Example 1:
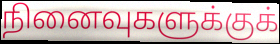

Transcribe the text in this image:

நினைவுகளுக்குக்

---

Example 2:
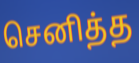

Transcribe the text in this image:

செனித்த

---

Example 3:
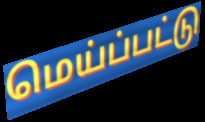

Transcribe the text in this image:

மெய்ப்பட்டு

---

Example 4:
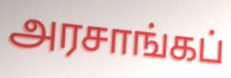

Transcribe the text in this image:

அரசாங்கப்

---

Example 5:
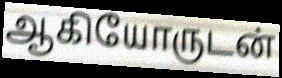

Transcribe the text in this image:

ஆகியோருடன்